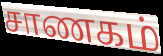
சாணகம்